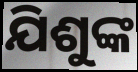
ଯିଶୁଙ୍କ